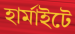
হাৰ্মাইটে